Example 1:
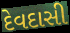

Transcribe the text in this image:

દેવદાસી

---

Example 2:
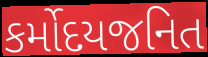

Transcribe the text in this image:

કર્મોદયજનિત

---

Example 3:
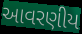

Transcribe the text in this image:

આવરણીય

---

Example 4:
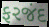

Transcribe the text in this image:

ફરજંદ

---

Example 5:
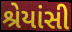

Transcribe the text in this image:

શ્રેયાંસી